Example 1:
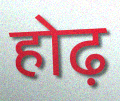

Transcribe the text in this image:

होढ़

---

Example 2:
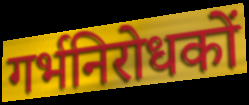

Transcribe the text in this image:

गर्भनिरोधकों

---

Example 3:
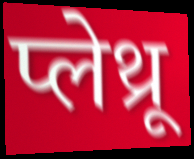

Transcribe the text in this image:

प्लेथ्रू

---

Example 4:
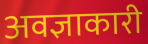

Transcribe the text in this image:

अवज्ञाकारी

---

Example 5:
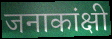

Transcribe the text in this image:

जनाकांक्षी